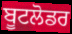
ਬੂਟਲੋਡਰ